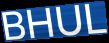
BHUL